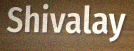
Shivalay